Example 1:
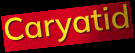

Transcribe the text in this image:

Caryatid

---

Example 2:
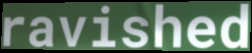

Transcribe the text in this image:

ravished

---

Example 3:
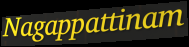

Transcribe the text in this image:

Nagappattinam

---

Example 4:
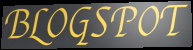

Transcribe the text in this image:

BLOGSPOT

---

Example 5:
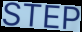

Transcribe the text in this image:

STEP